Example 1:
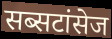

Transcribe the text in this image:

सब्सटांसेज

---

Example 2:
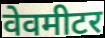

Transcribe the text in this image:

वेवमीटर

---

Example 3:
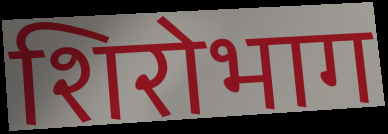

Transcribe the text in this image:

शिरोभाग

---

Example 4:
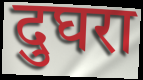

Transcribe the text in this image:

दुघरा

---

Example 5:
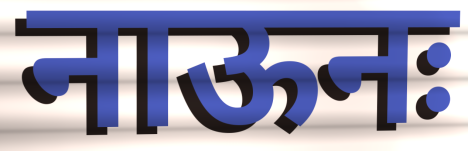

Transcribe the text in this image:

नाऊनः